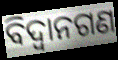
ବିଦ୍ଵାନଗଣ